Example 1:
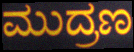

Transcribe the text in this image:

ಮುದ್ರಣ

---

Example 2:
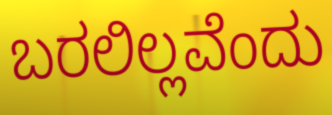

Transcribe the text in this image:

ಬರಲಿಲ್ಲವೆಂದು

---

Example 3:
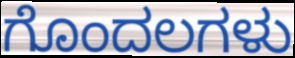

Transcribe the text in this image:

ಗೊಂದಲಗಳು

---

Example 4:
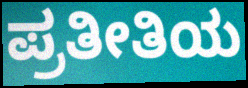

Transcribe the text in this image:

ಪ್ರತೀತಿಯ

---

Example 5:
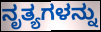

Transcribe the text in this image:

ನೃತ್ಯಗಳನ್ನು